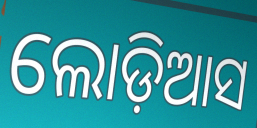
ଲୋଡ଼ିଆସ